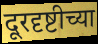
दूरदृष्टीच्या